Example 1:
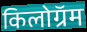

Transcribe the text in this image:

किलोग्रॅम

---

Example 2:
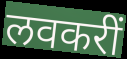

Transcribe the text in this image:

लवकरीं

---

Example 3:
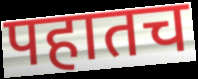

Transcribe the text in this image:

पहातच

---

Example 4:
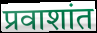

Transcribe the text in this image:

प्रवाशांत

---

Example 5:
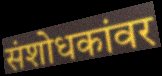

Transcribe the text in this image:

संशोधकांवर